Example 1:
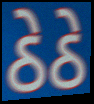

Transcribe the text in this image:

ઠેઠે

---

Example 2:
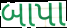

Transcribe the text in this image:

બાપા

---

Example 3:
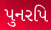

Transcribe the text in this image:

પુનરપિ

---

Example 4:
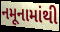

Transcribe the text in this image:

નમૂનામાંથી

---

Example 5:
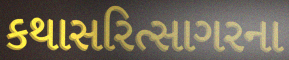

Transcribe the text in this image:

કથાસરિત્સાગરના